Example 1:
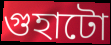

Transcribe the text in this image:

গুহাটো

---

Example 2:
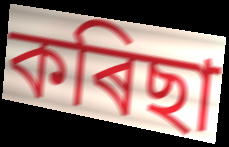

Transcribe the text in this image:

কৰিছা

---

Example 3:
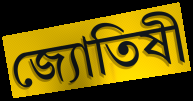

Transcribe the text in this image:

জ্যোতিষী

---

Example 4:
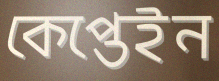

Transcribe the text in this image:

কেপ্তেইন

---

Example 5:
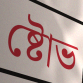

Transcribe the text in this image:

ষ্টোভ